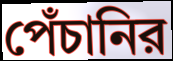
পেঁচানির